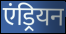
एंड्रियन